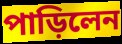
পাড়িলেন